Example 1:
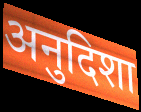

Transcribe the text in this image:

अनुदिशा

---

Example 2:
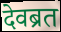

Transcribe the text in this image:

देवब्रत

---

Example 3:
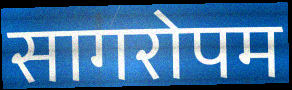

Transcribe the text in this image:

सागरोपम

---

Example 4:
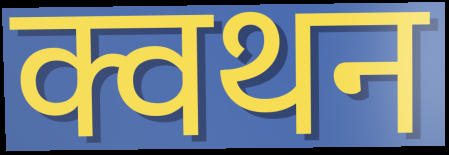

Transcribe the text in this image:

क्वथन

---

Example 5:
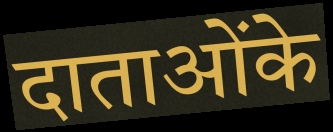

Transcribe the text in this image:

दाताओंके